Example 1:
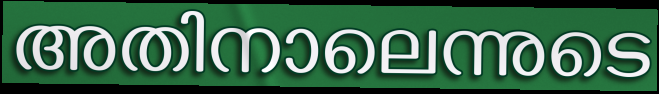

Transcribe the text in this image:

അതിനാലെന്നുടെ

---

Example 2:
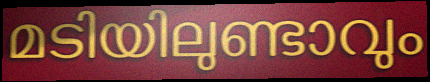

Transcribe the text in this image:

മടിയിലുണ്ടാവും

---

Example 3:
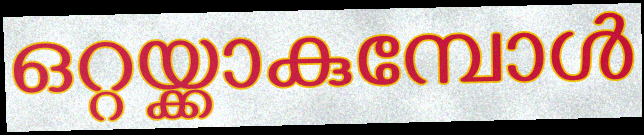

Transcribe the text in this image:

ഒറ്റയ്ക്കാകുമ്പോൾ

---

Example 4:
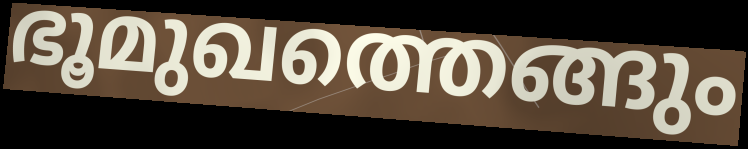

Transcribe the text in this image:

ഭൂമുഖത്തെങ്ങും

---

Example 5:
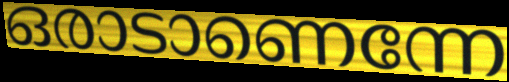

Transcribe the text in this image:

ഒരാടാണെന്നേ